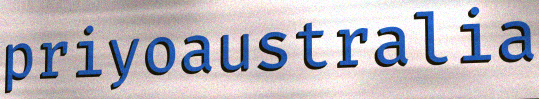
priyoaustralia